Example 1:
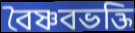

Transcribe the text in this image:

বৈষ্ণবভক্তি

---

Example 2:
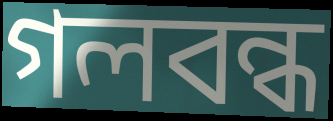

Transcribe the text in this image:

গলবন্ধ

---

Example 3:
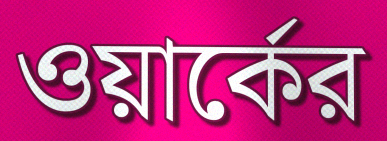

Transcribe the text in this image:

ওয়ার্কের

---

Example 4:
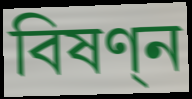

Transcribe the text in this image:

বিষণ্ন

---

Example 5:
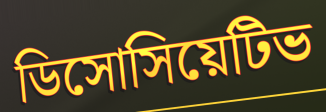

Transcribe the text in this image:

ডিসোসিয়েটিভ